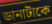
ডানাটাকে